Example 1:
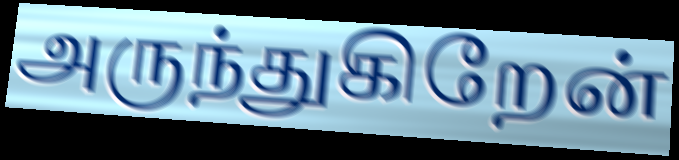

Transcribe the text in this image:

அருந்துகிறேன்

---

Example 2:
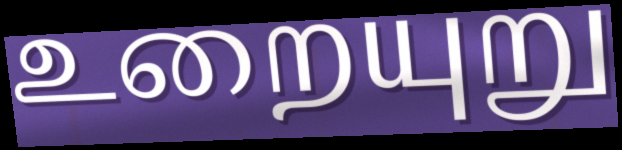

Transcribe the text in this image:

உறையுறு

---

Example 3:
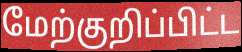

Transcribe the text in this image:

மேற்குறிப்பிட்ட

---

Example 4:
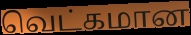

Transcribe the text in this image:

வெட்கமான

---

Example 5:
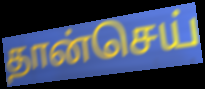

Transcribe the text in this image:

தான்செய்